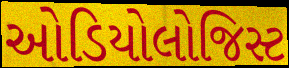
ઓડિયોલોજિસ્ટ